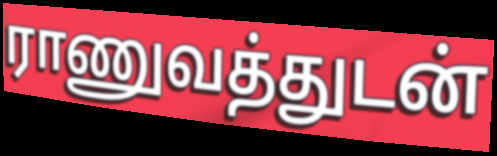
ராணுவத்துடன்